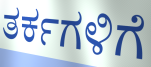
ತರ್ಕಗಳಿಗೆ